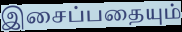
இசைப்பதையும்